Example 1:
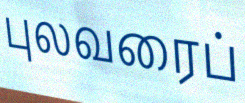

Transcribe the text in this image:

புலவரைப்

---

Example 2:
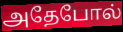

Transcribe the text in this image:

அதேபோல்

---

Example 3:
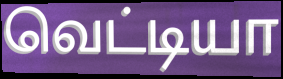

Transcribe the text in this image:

வெட்டியா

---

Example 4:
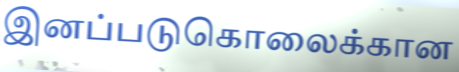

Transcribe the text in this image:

இனப்படுகொலைக்கான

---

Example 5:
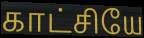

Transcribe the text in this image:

காட்சியே